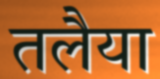
तलैया